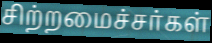
சிற்றமைச்சர்கள்